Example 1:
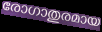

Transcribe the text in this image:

രോഗാതുരമായ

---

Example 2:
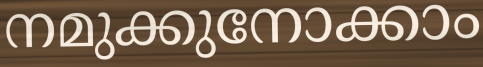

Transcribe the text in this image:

നമുക്കുനോക്കാം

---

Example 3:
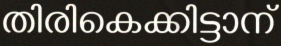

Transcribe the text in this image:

തിരികെക്കിട്ടാന്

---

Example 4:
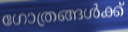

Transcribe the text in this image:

ഗോത്രങ്ങൾക്ക്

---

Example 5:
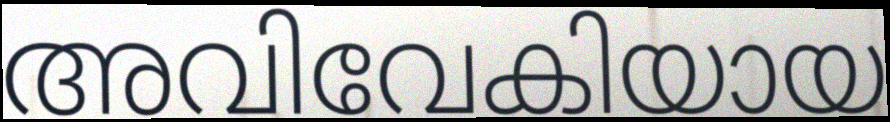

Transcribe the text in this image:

അവിവേകിയായ